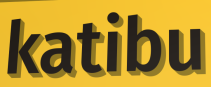
katibu